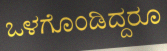
ಒಳಗೊಂಡಿದ್ದರೂ